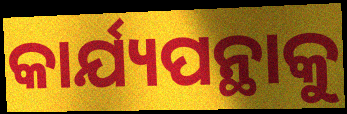
କାର୍ଯ୍ୟପନ୍ଥାକୁ